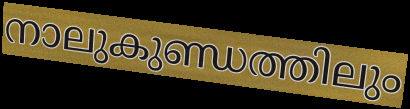
നാലുകുണ്ഡത്തിലും